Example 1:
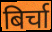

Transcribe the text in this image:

बिर्चा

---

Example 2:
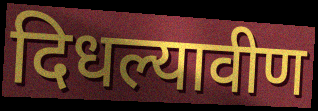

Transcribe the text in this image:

दिधल्यावीण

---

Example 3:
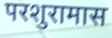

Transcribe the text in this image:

परशुरामास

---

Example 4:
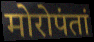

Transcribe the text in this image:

मोरोपंतां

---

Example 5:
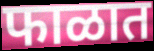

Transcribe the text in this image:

फाळात